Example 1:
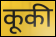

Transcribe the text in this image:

कूकी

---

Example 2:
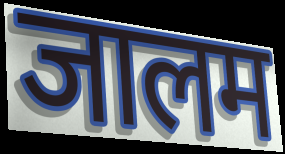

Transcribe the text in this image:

जालम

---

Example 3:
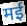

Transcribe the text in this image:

मई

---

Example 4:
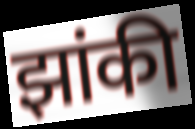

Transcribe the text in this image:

झांकी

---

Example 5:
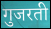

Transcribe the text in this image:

गुजरती